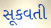
સૂકવતી